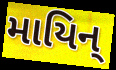
માયિન્